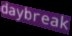
daybreak